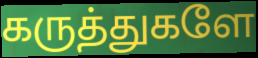
கருத்துகளே